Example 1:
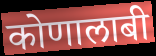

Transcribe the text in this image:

कोणालाबी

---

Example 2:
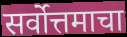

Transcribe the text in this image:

सर्वोत्तमाचा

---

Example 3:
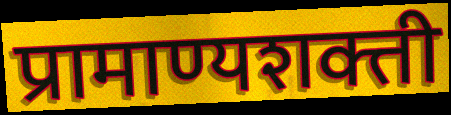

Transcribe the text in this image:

प्रामाण्यशक्ती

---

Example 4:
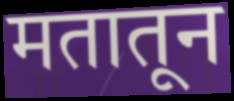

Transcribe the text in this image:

मतातून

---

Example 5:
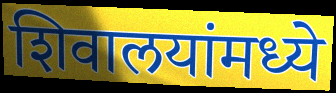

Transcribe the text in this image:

शिवालयांमध्ये